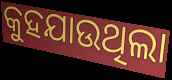
କୁହଯାଉଥିଲା